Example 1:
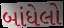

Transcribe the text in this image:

બાંધેલો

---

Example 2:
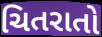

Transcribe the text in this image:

ચિતરાતો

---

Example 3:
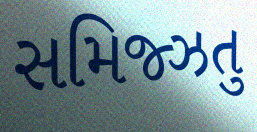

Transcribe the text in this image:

સમિજ્ઝતુ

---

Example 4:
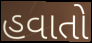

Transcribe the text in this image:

હવાતો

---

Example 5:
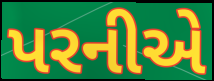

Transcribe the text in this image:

પરનીએ